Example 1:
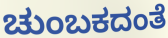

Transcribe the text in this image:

ಚುಂಬಕದಂತೆ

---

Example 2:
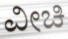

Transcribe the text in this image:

ವೀಚಿ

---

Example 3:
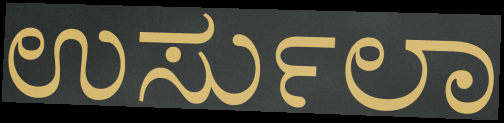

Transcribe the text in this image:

ಉರ್ಸುಲಾ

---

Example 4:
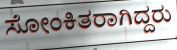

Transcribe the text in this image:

ಸೋಂಕಿತರಾಗಿದ್ದರು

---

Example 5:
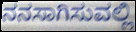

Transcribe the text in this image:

ನನಸಾಗಿಸುವಲ್ಲಿ